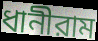
ধানীরাম